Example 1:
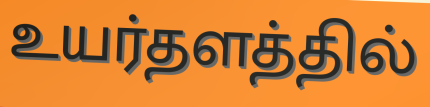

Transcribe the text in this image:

உயர்தளத்தில்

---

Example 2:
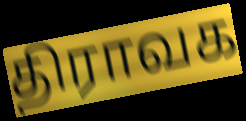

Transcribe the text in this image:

திராவக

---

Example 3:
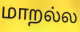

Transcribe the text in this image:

மாறல்ல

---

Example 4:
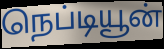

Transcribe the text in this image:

நெப்டியூன்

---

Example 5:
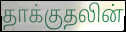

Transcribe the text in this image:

தாக்குதலின்